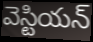
వెస్టియన్